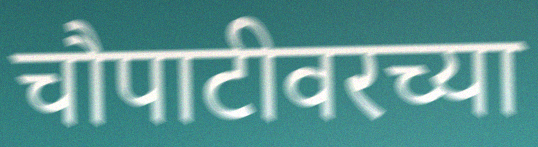
चौपाटीवरच्या